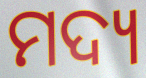
ମଦ୍ଯ